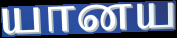
யானய